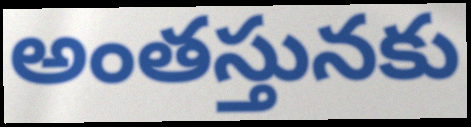
అంతస్తునకు